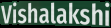
Vishalakshi